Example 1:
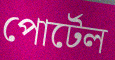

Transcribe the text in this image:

পোর্টেল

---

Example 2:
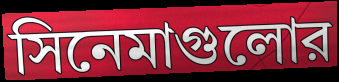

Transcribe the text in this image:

সিনেমাগুলোর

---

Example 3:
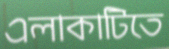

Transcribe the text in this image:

এলাকাটিতে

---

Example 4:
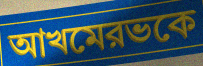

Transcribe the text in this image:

আখমেরভকে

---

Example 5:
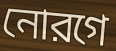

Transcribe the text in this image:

নোরগে